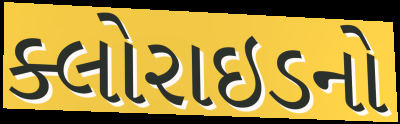
ક્લોરાઇડનો